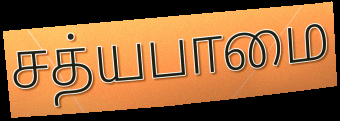
சத்யபாமை